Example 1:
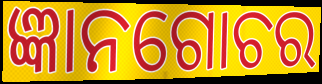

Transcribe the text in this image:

ଜ୍ଞାନଗୋଚର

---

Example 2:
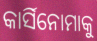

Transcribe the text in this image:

କାର୍ସିନୋମାକୁ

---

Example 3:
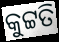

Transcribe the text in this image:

କୁଟ୍ଟତି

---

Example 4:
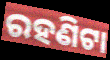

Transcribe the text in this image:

ରହଣିଟା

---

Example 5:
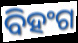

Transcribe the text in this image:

ବିହଂଗ